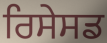
ਰਿਸੇਸਡ